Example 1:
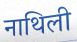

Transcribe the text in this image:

नाथिली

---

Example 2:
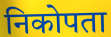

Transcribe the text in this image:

निकोपता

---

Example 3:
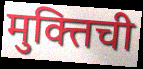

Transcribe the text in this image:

मुक्तिची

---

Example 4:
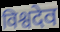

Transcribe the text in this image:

विश्वदेव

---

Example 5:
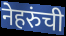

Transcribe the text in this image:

नेहरुंची